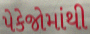
પેકેજોમાંથી